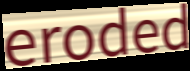
eroded